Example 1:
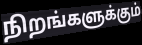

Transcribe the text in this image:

நிறங்களுக்கும்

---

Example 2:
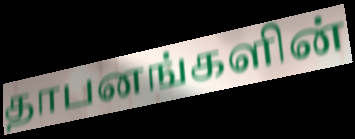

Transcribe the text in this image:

தாபனங்களின்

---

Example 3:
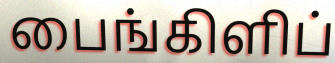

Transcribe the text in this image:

பைங்கிளிப்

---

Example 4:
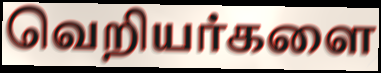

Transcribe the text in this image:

வெறியர்களை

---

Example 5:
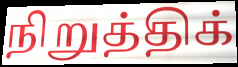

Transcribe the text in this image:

நிறுத்திக்